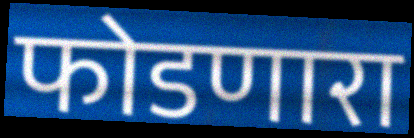
फोडणारा